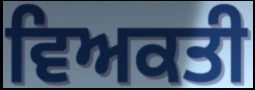
ਵਿਅਕਤੀ